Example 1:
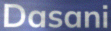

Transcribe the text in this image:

Dasani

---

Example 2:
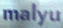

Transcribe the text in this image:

malyu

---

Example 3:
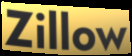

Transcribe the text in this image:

Zillow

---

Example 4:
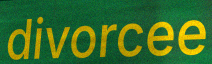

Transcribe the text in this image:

divorcee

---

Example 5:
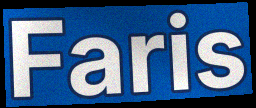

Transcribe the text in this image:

Faris